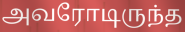
அவரோடிருந்த